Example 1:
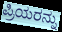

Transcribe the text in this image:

ಪ್ರಿಯರನ್ನು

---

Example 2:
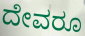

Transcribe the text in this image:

ದೇವರೂ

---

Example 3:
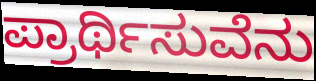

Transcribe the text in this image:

ಪ್ರಾರ್ಥಿಸುವೆನು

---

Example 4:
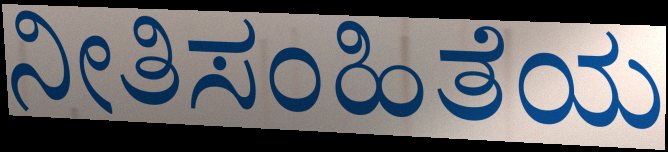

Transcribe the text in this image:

ನೀತಿಸಂಹಿತೆಯ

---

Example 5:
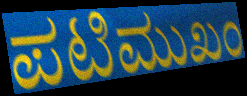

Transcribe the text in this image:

ಪಟಿಮುಖಂ